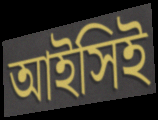
আইসিই